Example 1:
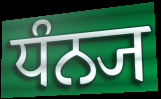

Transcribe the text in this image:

ਧੰਨ੍ਯ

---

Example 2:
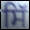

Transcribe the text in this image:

ਸਿੱ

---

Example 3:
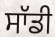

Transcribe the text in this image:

ਸਾੱਡੀ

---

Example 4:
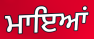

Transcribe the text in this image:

ਮਾਇਆਂ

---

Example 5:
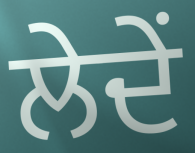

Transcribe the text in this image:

ਲੇਦੇਂ